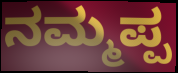
ನಮ್ಮಪ್ಪ